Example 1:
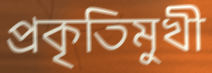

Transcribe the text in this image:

প্রকৃতিমুখী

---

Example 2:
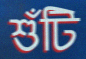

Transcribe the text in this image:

শুঁটি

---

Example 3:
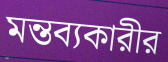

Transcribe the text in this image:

মন্তব্যকারীর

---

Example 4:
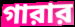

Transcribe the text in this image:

গারার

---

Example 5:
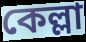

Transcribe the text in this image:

কেল্লা